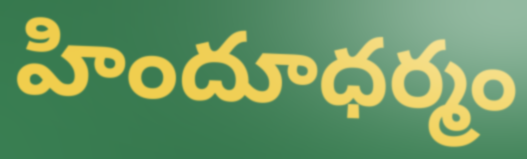
హిందూధర్మం